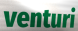
venturi